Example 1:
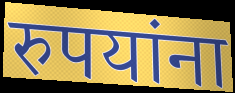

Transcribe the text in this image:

रुपयांना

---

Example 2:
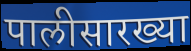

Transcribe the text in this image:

पालीसारख्या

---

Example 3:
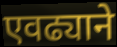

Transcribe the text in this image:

एवढ्याने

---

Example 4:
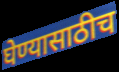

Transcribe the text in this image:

घेण्यासाठीच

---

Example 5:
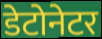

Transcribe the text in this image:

डेटोनेटर